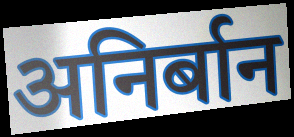
अनिर्बान